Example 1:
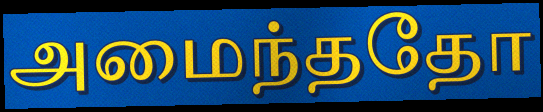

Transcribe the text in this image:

அமைந்ததோ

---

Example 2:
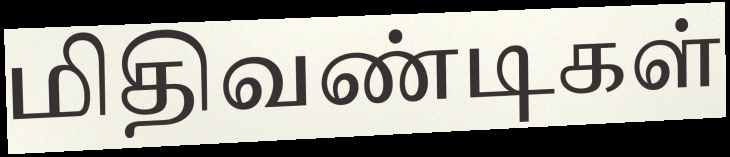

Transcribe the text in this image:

மிதிவண்டிகள்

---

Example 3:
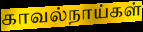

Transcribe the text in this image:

காவல்நாய்கள்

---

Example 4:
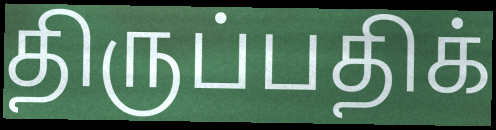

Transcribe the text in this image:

திருப்பதிக்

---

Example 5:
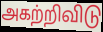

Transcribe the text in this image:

அகற்றிவிடு